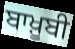
ਬਾਖ਼ੂਬੀ